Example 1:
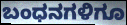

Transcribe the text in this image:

ಬಂಧನಗಳಿಗೂ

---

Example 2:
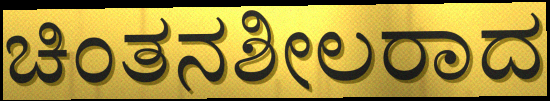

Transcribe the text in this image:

ಚಿಂತನಶೀಲರಾದ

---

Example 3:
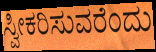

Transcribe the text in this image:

ಸ್ವೀಕರಿಸುವರೆಂದು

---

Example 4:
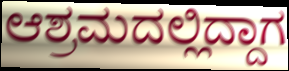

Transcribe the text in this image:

ಆಶ್ರಮದಲ್ಲಿದ್ದಾಗ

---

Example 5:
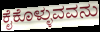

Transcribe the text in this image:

ಕೈಕೊಳ್ಳುವವನು